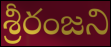
శ్రీరంజని